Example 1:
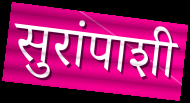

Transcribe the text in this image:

सुरांपाशी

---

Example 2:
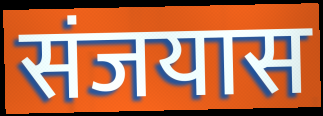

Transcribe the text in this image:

संजयास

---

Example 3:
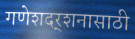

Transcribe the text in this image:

गणेशदर्शनासाठी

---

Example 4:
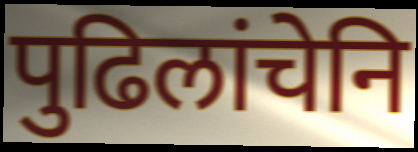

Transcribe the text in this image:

पुढिलांचेनि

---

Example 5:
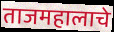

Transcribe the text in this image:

ताजमहालाचे